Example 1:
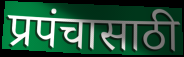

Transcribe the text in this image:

प्रपंचासाठी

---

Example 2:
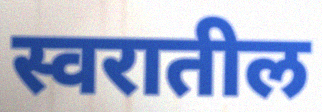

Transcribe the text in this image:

स्वरातील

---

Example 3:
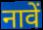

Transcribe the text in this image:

नावें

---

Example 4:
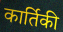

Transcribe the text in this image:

कार्तिकी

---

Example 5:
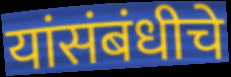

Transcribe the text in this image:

यांसंबंधीचे